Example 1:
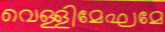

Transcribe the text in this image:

വെള്ളിമേഘമേ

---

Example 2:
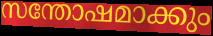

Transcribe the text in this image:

സന്തോഷമാക്കും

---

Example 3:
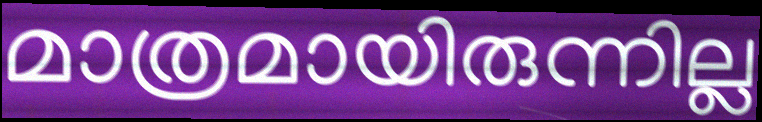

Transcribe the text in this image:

മാത്രമായിരുന്നില്ല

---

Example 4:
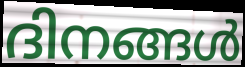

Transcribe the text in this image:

ദിനങ്ങൾ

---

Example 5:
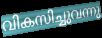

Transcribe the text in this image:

വികസിച്ചുവന്നു